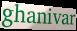
ghanivar